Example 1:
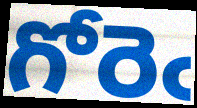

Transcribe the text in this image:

గోరెఁ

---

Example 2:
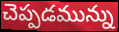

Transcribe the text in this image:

చెప్పడమున్ను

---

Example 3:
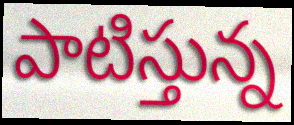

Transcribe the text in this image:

పాటిస్తున్న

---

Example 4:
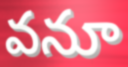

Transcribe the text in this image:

వనూ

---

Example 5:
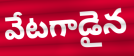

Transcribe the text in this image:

వేటగాడైన